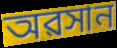
অৱসান